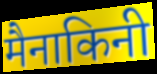
मैनाकिनी